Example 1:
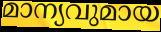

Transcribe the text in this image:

മാന്യവുമായ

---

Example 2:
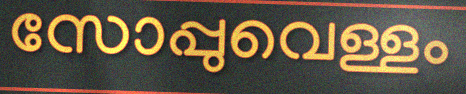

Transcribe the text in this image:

സോപ്പുവെള്ളം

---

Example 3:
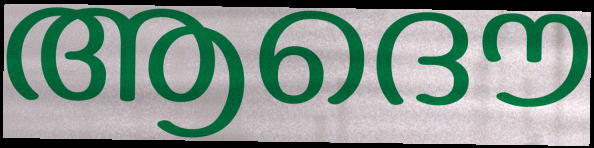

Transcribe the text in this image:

ആദൌ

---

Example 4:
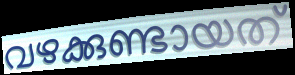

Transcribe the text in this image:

വഴക്കുണ്ടായത്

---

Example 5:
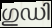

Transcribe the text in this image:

ഗുഡി